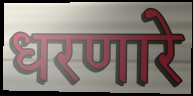
धरणारे